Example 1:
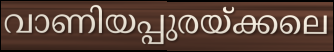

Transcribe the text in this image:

വാണിയപ്പുരയ്ക്കലെ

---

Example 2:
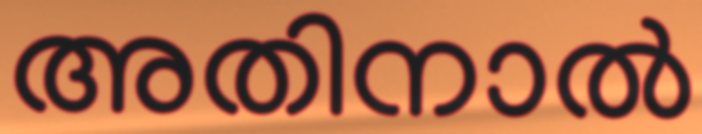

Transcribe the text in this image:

അതിനാൽ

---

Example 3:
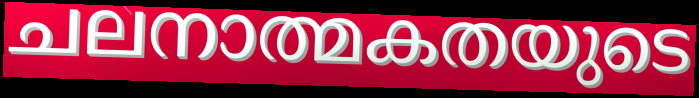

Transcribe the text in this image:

ചലനാത്മകതയുടെ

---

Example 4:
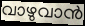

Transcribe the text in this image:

വാഴുവാൻ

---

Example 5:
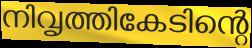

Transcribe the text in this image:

നിവൃത്തികേടിന്റെ